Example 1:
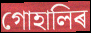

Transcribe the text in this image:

গোহালিৰ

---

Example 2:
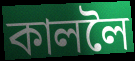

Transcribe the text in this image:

কাললৈ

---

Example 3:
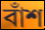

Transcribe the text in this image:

বাঁশ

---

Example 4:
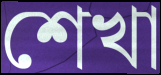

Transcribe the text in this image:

শেখা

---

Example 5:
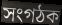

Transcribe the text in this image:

সংগঠক